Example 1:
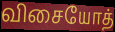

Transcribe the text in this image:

விசையோத்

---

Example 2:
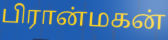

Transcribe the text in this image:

பிரான்மகன்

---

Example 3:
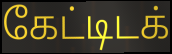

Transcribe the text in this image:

கேட்டிடக்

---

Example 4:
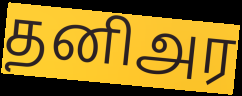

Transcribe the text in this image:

தனிஅர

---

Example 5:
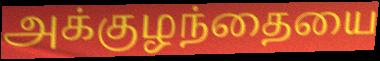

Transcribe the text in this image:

அக்குழந்தையை